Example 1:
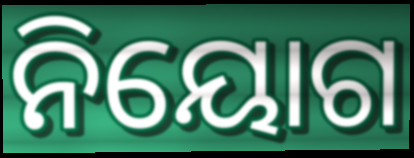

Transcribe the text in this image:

ନିୟୋଗ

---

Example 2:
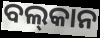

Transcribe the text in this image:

ବଲ୍‌କାନ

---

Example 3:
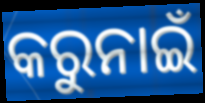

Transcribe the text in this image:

କରୁନାଇଁ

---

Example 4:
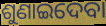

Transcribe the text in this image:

ଶୁଣାଇଦେବା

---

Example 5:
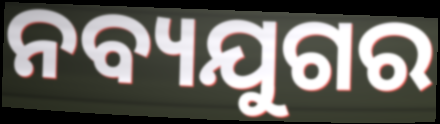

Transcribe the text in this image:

ନବ୍ୟଯୁଗର